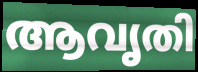
ആവൃതി